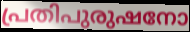
പ്രതിപുരുഷനോ